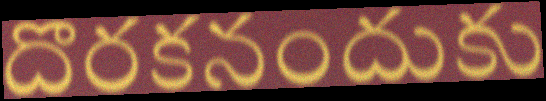
దొరకనందుకు